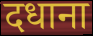
दधाना